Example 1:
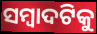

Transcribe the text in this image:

ସମ୍ୱାଦଟିକୁ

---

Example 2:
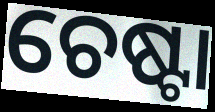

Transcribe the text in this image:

ଚେଷ୍ଟା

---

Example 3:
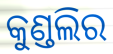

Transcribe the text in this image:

କୁଣ୍ଡଲିର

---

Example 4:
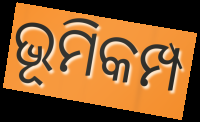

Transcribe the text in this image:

ଭୂମିକମ୍ପ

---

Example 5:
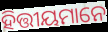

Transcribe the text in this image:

ହିତ୍ତୀୟମାନେ